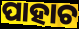
ପାହାଚ